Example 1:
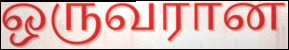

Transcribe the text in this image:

ஒருவரான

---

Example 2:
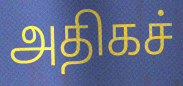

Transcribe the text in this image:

அதிகச்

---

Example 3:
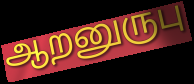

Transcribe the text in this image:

ஆறனுருபு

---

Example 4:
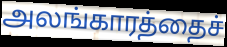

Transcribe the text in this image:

அலங்காரத்தைச்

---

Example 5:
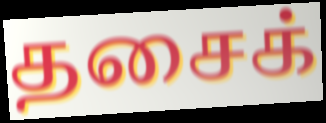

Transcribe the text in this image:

தசைக்